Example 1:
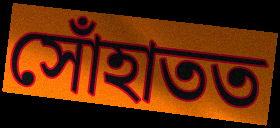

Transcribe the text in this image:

সোঁহাতত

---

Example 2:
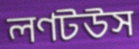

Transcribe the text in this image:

লণটউস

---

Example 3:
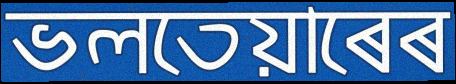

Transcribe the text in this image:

ভলতেয়াৰেৰ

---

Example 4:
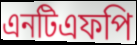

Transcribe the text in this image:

এনটিএফপি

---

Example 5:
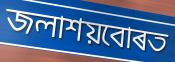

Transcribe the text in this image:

জলাশয়বোৰত